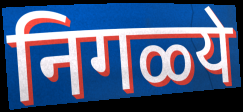
निगळ्ये